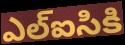
ఎల్ఐసికి